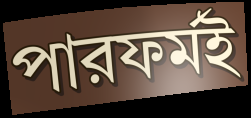
পারফর্মই